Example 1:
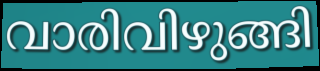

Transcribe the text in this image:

വാരിവിഴുങ്ങി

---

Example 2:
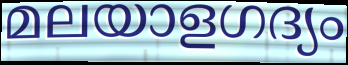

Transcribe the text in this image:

മലയാളഗദ്യം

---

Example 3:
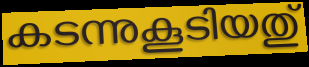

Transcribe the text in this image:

കടന്നുകൂടിയതു്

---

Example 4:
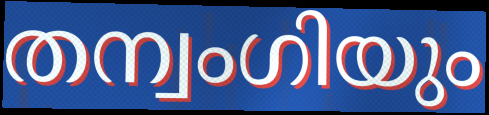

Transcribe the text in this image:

തന്വംഗിയും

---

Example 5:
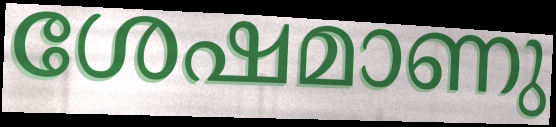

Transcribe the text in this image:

ശേഷമാണു